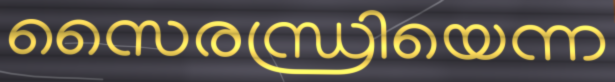
സൈരന്ധ്രിയെന്ന